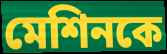
মেশিনকে